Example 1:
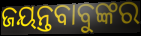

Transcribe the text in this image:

ଜୟନ୍ତବାବୁଙ୍କର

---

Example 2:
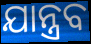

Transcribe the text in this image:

ଯାନ୍ତ୍ରବ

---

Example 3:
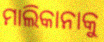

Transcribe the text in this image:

ମାଲିକାନାକୁ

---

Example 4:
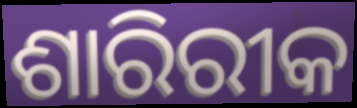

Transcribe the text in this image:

ଶାରିରୀକ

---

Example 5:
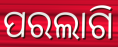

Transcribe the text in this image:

ପରଲାଗି